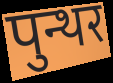
पुन्थर